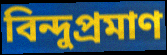
বিন্দুপ্রমাণ